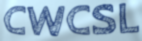
CWCSL